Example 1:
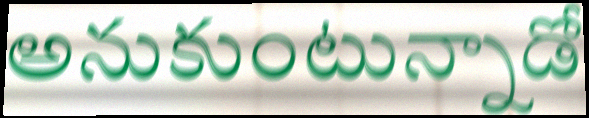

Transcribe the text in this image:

అనుకుంటున్నాడో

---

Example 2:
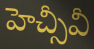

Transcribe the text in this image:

హెచ్సీవీ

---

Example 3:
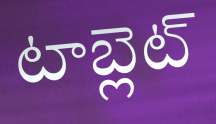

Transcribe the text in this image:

టాబ్లెట్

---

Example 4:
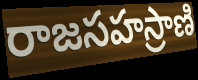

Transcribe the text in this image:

రాజసహస్రాణి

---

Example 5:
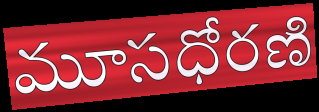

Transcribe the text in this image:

మూసధోరణి